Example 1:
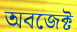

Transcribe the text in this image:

অবজেক্ট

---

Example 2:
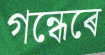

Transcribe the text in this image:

গন্ধেৰে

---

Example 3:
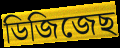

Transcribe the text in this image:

ডিজিজেছ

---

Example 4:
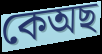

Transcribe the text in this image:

কেঅছ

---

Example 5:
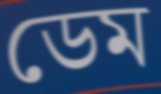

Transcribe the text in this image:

ডেম